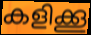
കളിക്കൂ